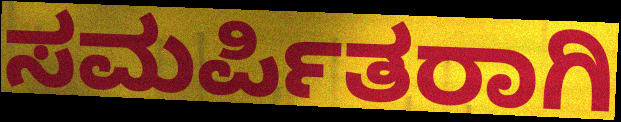
ಸಮರ್ಪಿತರಾಗಿ